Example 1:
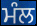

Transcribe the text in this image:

ਮੰਲ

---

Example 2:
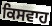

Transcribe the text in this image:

ਕਿਸਵਾਹ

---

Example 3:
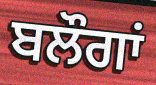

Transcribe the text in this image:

ਬਲੌਗਾਂ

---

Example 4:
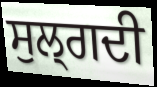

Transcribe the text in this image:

ਸੁਲ੍ਗਦੀ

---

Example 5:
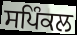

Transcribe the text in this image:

ਸਪਿੰਕਲ